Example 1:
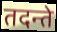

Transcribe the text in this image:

तदन्ते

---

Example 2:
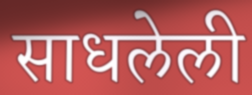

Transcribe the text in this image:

साधलेली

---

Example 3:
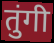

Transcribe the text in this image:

तुंगी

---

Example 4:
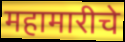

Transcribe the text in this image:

महामारीचे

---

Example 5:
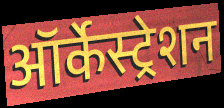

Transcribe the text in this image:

ऑर्केस्ट्रेशन